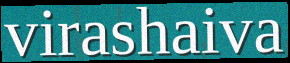
virashaiva